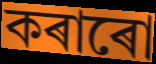
কৰাৰো